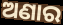
ଅଣାର